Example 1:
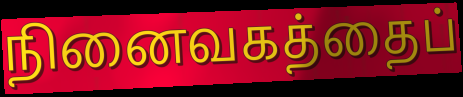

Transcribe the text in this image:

நினைவகத்தைப்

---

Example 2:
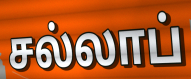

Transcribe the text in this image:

சல்லாப்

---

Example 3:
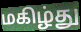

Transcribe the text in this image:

மகிழ்து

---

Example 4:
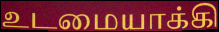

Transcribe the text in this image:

உடமையாக்கி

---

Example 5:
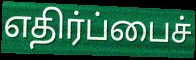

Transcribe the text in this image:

எதிர்ப்பைச்